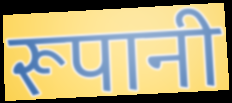
रूपानी